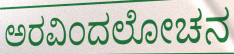
ಅರವಿಂದಲೋಚನ